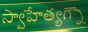
స్వాహేత్యగ్నౌ